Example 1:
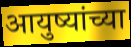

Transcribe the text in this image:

आयुष्यांच्या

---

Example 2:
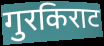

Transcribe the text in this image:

गुरकिराट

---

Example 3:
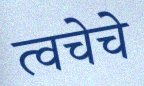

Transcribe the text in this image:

त्वचेचे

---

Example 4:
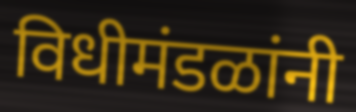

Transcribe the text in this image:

विधीमंडळांनी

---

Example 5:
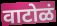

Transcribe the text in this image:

वाटोळं